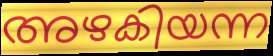
അഴകിയന്ന